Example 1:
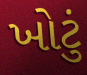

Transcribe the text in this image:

ખોટું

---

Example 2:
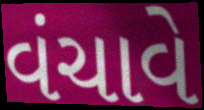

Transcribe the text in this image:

વંચાવે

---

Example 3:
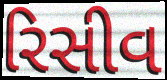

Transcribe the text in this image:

રિસીવ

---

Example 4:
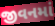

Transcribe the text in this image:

જીવનમાં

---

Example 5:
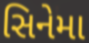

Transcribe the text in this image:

સિનેમા